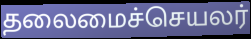
தலைமைச்செயலர்